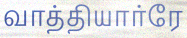
வாத்தியார்ரே